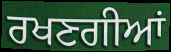
ਰਖਣਗੀਆਂ